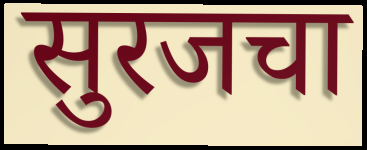
सुरजचा